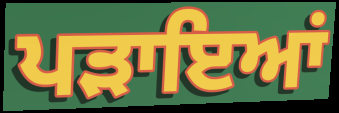
ਪੜਾਇਆਂ